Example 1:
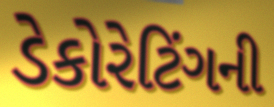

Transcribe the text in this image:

ડેકોરેટિંગની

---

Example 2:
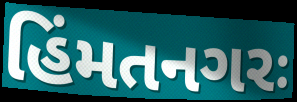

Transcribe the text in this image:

હિંમતનગરઃ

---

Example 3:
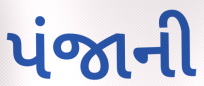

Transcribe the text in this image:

પંજાની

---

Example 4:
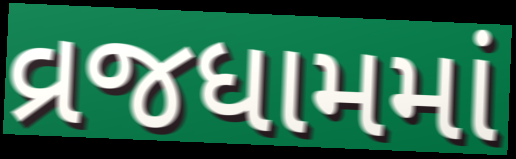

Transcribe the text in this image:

વ્રજધામમાં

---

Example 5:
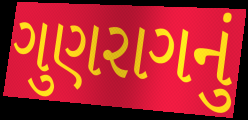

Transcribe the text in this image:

ગુણરાગનું